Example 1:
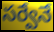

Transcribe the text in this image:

సర్వేనే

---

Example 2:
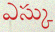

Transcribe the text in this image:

ఎస్కు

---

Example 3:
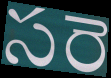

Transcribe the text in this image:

సరె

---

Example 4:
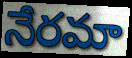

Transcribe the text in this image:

నేరమా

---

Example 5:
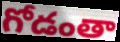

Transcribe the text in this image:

గోడంతా